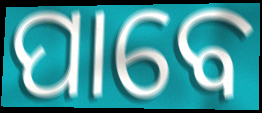
ପାବେ